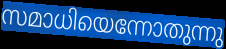
സമാധിയെന്നോതുന്നു